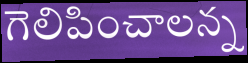
గెలిపించాలన్న